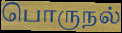
பொருநல்